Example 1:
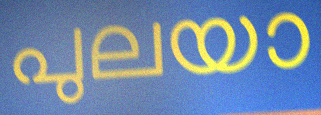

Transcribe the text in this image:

പുലയാ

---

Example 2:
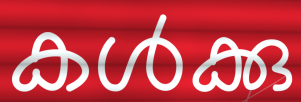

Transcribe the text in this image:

കൾക്കു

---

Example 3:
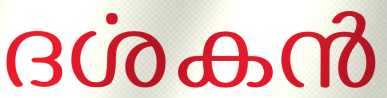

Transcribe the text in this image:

ദൎശകൻ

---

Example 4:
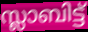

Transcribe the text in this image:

സ്ലാബിട്ട്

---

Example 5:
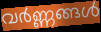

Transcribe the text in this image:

വർണ്ണങ്ങൾ